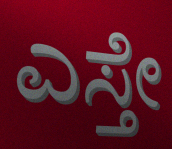
ಎಸ್ತೇ